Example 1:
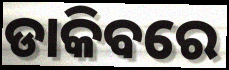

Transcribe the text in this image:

ଡାକିବରେ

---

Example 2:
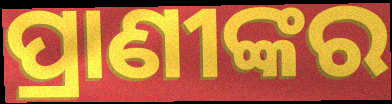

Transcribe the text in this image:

ପ୍ରାଣୀଙ୍କର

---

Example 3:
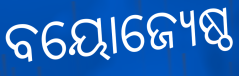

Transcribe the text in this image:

ବୟୋଜ୍ୟେଷ୍ଠ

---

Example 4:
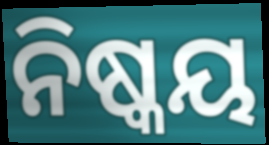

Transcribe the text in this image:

ନିଷ୍କୟ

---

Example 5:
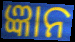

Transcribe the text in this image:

ଜ୍ଞାନ